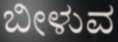
ಬೀಳುವ